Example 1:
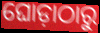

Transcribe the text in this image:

ଘୋଡ଼ାଠାରୁ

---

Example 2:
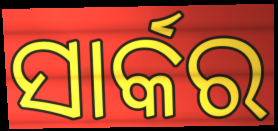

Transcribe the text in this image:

ସାର୍କର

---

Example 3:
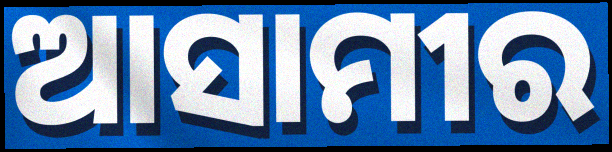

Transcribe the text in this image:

ଆସାମୀର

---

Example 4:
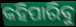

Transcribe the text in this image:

କହିପାରିବୁ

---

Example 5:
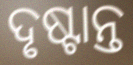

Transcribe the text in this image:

ଦୃଷ୍ଟାନ୍ତ